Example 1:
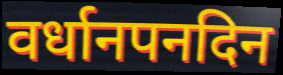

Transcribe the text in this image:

वर्धानपनदिन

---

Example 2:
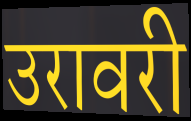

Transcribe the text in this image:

उरावरी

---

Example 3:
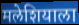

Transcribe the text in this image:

मलेशियाला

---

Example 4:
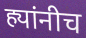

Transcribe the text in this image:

ह्यांनीच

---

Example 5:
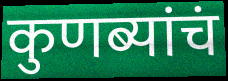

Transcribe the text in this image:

कुणब्यांचं